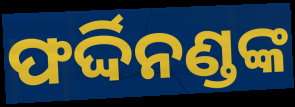
ଫର୍ଦ୍ଦିନଣ୍ଡଙ୍କ